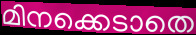
മിനക്കെടാതെ